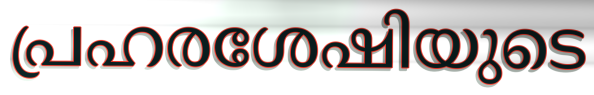
പ്രഹരശേഷിയുടെ